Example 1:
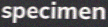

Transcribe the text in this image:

specimen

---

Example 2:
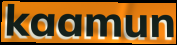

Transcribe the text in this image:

kaamun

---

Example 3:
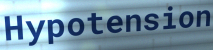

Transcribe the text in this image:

Hypotension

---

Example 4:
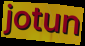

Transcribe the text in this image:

jotun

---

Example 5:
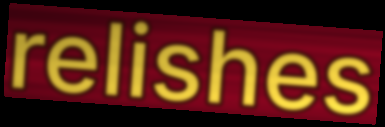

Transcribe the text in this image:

relishes